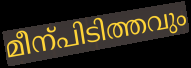
മീന്പിടിത്തവും